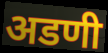
अडणी